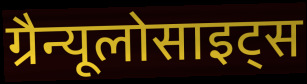
ग्रैन्यूलोसाइट्स